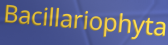
Bacillariophyta